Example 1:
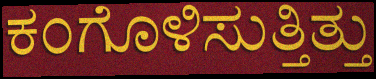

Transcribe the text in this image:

ಕಂಗೊಳಿಸುತ್ತಿತ್ತು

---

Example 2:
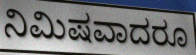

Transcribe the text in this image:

ನಿಮಿಷವಾದರೂ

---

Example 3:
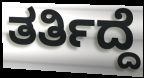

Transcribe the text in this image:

ತರ್ತಿದ್ದೆ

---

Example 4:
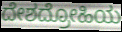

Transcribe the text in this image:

ದೇಶದ್ರೋಹಿಯ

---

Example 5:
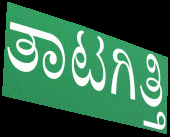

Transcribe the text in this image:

ತಾಟಗಿತ್ತಿ